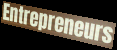
Entrepreneurs